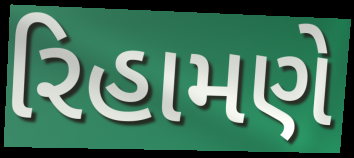
રિહામણે